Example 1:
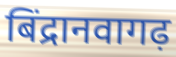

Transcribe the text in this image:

बिंद्रानवागढ़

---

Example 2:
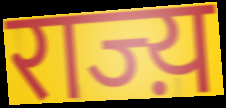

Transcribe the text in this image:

राज्य़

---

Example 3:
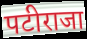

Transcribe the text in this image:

पटीराजा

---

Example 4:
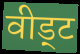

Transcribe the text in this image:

वीड्ट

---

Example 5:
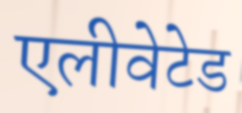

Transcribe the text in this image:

एलीवेटेड